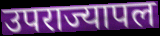
उपराज्यापल